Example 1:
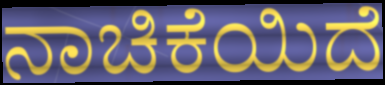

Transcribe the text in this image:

ನಾಚಿಕೆಯಿದೆ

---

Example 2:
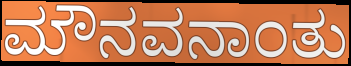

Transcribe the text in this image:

ಮೌನವನಾಂತು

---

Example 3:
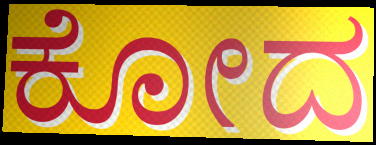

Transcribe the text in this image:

ಕೋದ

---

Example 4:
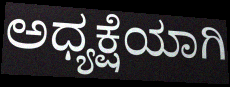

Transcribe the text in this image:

ಅಧ್ಯಕ್ಷೆಯಾಗಿ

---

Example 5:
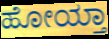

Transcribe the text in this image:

ಹೋಯ್ತಾ